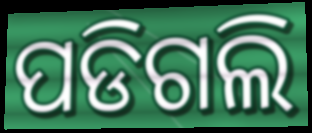
ପଡିଗଲି